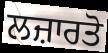
ਲਜ਼ਾਰਤੋ